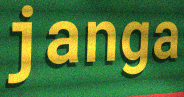
janga